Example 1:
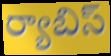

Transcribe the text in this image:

ర్యాబిస్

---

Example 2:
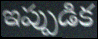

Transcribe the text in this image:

ఇప్పుడిక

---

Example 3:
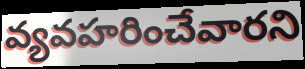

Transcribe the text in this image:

వ్యవహరించేవారని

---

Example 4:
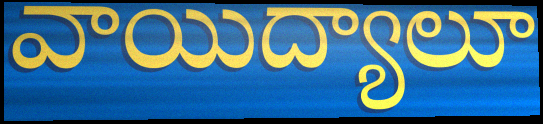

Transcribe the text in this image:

వాయిద్యాలూ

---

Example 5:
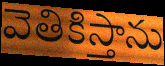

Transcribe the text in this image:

వెతికిస్తాను